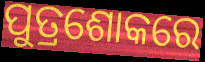
ପୁତ୍ରଶୋକରେ